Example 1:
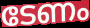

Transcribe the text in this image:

ടേണം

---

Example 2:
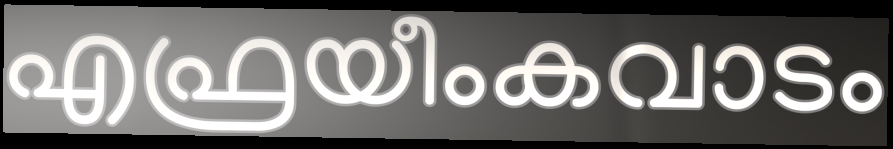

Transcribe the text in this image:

എഫ്രയീംകവാടം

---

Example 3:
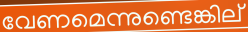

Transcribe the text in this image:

വേണമെന്നുണ്ടെങ്കില്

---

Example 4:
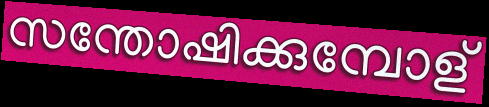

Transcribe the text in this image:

സന്തോഷിക്കുമ്പോള്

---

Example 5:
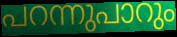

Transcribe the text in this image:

പറന്നുപാറും